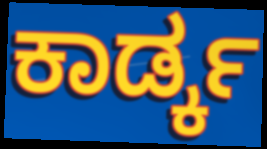
ಕಾರ್ಡ್ಕ